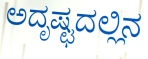
ಅದೃಷ್ಟದಲ್ಲಿನ